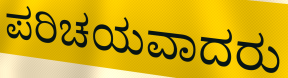
ಪರಿಚಯವಾದರು